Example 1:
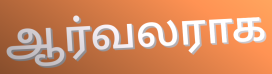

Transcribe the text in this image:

ஆர்வலராக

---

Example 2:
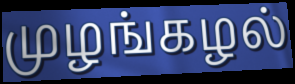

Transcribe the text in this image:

முழங்கழல்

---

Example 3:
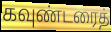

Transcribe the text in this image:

கவுண்டரைத்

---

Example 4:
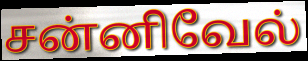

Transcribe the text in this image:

சன்னிவேல்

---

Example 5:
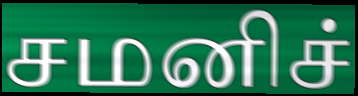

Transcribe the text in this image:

சமனிச்